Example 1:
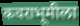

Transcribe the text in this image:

कचराभूमीला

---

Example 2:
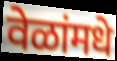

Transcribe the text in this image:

वेळांमधे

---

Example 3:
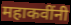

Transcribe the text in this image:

महाकवींनी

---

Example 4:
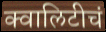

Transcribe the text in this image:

क्वालिटीचं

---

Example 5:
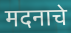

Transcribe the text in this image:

मदनाचे